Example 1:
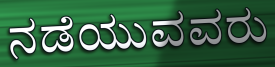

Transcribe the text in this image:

ನಡೆಯುವವರು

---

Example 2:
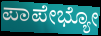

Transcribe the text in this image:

ಪಾಪೇಭ್ಯೋ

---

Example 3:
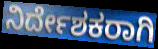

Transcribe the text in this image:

ನಿರ್ದೇಶಕರಾಗಿ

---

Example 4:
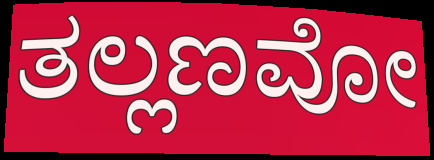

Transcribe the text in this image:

ತಲ್ಲಣವೋ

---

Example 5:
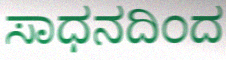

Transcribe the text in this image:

ಸಾಧನದಿಂದ